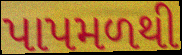
પાપમળથી